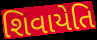
શિવાયેતિ